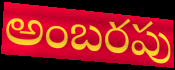
అంబరపు